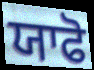
ਯਾਫੋ